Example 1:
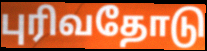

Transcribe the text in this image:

புரிவதோடு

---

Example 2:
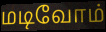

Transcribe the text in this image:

மடிவோம்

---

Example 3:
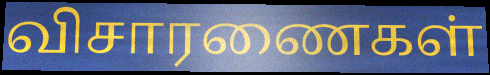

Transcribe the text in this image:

விசாரணைகள்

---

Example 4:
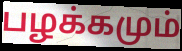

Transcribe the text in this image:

பழக்கமும்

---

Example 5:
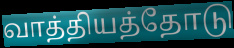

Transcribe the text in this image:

வாத்தியத்தோடு